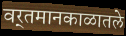
वर्तमानकाळातले